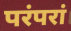
परंपरां